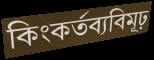
কিংকর্তব্যবিমূঢ়